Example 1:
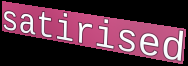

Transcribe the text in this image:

satirised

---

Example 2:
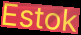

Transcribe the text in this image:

Estok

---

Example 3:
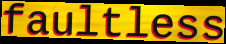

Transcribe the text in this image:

faultless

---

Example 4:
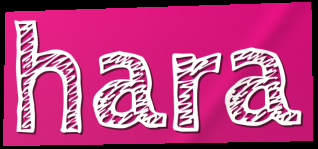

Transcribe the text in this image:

hara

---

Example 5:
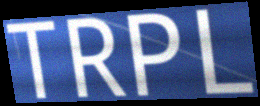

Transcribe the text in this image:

TRPL